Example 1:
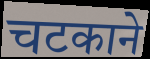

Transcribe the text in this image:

चटकाने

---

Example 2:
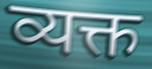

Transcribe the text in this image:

व्यक्त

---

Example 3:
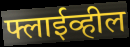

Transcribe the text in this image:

फ्लाईव्हील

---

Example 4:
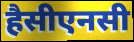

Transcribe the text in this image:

हैसीएनसी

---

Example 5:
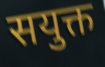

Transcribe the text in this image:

सयुक्त